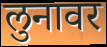
लुनावर